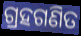
ଗ୍ରହଗଣିତ